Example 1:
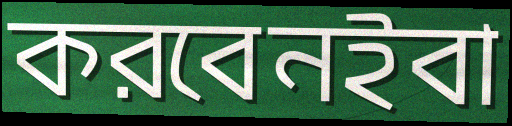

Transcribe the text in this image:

করবেনইবা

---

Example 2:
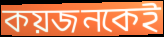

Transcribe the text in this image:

কয়জনকেই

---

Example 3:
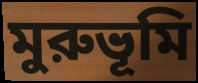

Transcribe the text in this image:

মুরুভূমি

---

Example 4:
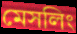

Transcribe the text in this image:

মেসলিং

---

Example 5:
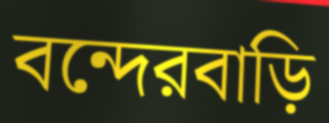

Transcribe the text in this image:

বন্দেরবাড়ি